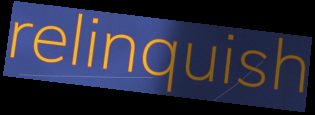
relinquish